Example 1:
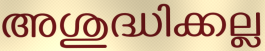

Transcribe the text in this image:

അശുദ്ധിക്കല്ല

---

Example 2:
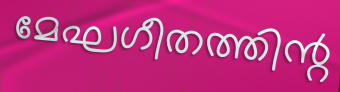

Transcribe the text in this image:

മേഘഗീതത്തിന്റ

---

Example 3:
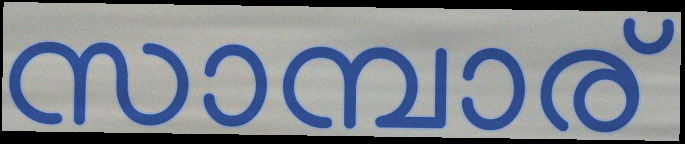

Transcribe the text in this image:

സാമ്പാര്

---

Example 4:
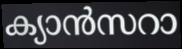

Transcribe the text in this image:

ക്യാൻസറാ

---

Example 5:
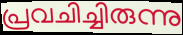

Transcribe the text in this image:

പ്രവചിച്ചിരുന്നു